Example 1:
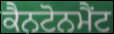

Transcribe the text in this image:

ਕੈਨਟੋਨਮੈਂਟ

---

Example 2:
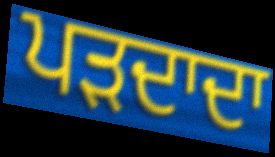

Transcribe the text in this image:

ਪੜਦਾਦਾ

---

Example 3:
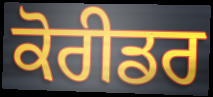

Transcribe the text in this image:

ਕੋਰੀਡਰ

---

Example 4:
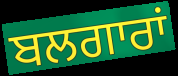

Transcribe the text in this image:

ਬਲਗਾਰਾਂ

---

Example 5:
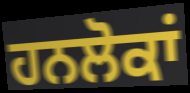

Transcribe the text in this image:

ਹਨਲੋਕਾਂ